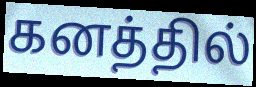
கனத்தில்